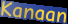
Kanaan